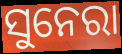
ସୁନେରା